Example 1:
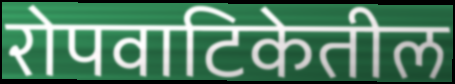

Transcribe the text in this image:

रोपवाटिकेतील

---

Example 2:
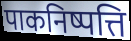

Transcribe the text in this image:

पाकनिष्पत्ति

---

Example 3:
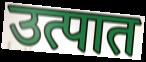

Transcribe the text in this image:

उत्पात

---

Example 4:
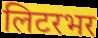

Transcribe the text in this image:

लिटरभर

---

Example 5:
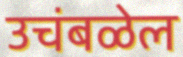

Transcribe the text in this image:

उचंबळेल